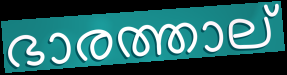
ഭാരത്താല്